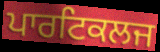
ਪਾਰਟਿਕਲਜ